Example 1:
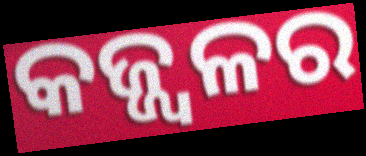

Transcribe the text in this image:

କଜ୍ଜ୍ୱଳର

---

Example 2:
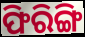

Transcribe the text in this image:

ଫିରିଙ୍ଗି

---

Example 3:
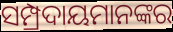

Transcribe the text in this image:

ସମ୍ପ୍ରଦାୟମାନଙ୍କର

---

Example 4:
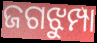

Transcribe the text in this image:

ଜଗଝୁମ୍ପା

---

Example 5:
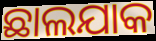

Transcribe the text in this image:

ଛାଲଯାକ